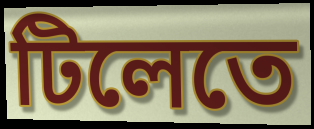
টিলেতে